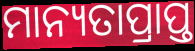
ମାନ୍ୟତାପ୍ରାପ୍ତ